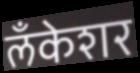
लँकेशर